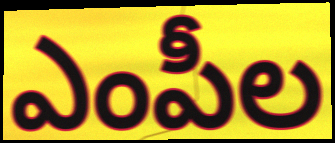
ఎంపీల